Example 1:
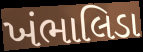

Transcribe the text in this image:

ખંભાલિડા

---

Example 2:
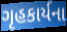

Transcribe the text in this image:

ગૃહકાર્યના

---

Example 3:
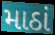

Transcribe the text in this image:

માઠાં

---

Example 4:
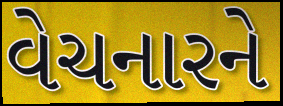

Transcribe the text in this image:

વેચનારને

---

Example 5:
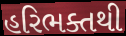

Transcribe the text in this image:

હરિભક્તથી